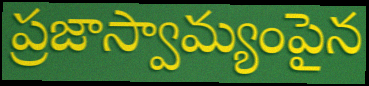
ప్రజాస్వామ్యంపైన